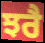
ਝਰੈ